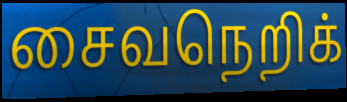
சைவநெறிக்